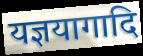
यज्ञयागादि